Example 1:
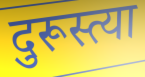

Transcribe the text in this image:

दुरूस्त्या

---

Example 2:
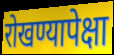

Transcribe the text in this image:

रोखण्यापेक्षा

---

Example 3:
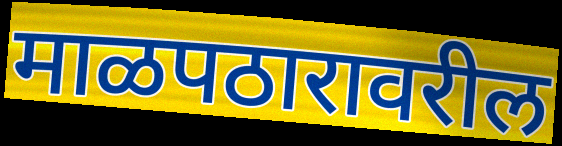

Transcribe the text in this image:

माळपठारावरील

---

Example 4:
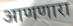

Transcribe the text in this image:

आणणारा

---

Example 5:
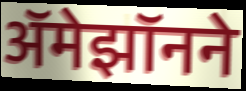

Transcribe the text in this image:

ॲमेझॉनने